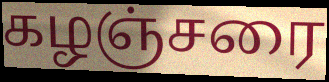
கழஞ்சரை